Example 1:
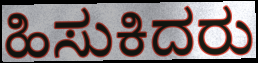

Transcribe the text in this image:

ಹಿಸುಕಿದರು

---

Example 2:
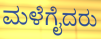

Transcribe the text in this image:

ಮಳೆಗೈದರು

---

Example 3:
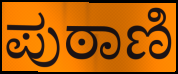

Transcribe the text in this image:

ಪುಠಾಣಿ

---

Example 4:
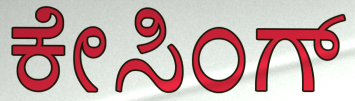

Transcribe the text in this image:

ಕೇಸಿಂಗ್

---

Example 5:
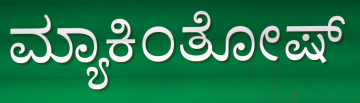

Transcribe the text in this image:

ಮ್ಯಾಕಿಂತೋಷ್